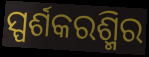
ସ୍ପର୍ଶକରଶ୍ମିର